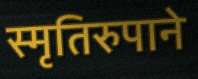
स्मृतिरुपाने